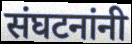
संघटनांनी